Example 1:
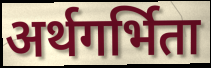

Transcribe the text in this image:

अर्थगर्भिता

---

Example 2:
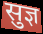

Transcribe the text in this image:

सुज्ञ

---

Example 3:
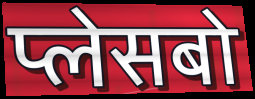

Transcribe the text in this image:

प्लेसबो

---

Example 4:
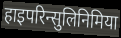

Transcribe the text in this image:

हाइपरिन्सुलिनिमिया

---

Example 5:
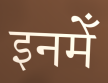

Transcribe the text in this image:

इनमेँ